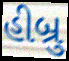
હીબ્રુ